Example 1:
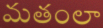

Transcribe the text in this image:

మతంలా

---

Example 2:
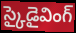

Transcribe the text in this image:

స్కైడైవింగ్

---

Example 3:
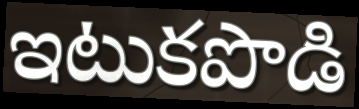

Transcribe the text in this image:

ఇటుకపొడి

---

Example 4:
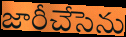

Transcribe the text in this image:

జారీచేసెను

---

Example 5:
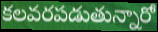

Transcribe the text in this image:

కలవరపడుతున్నారో